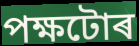
পক্ষটোৰ